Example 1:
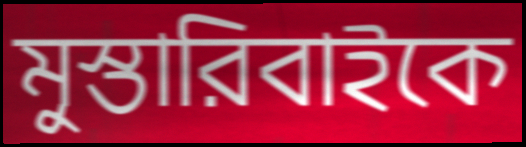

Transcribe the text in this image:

মুস্তারিবাইকে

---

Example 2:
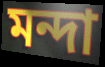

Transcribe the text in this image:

মন্দা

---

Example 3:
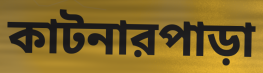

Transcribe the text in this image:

কাটনারপাড়া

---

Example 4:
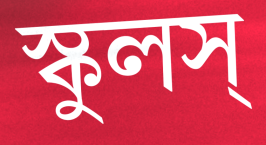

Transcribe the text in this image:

স্কুলস্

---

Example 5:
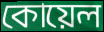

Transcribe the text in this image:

কোয়েল